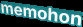
memohon